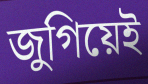
জুগিয়েই